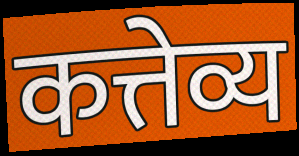
कत्तेव्य